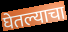
घेतल्याचा